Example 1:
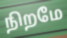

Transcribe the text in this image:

நிறமே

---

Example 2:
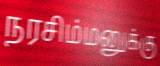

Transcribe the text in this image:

நரசிம்மனுக்கு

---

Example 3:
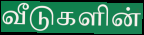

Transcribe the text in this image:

வீடுகளின்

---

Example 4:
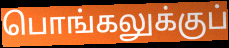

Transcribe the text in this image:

பொங்கலுக்குப்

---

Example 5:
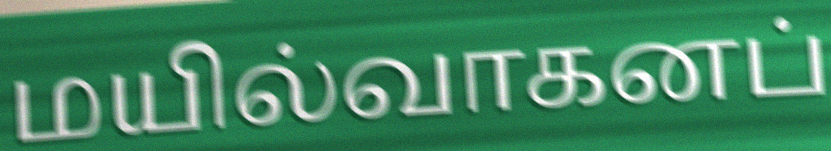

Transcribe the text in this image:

மயில்வாகனப்